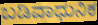
ಬಡಿವಾಧುನಿಕ